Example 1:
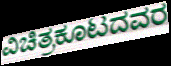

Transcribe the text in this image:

ವಿಚಿತ್ರಕೂಟದವರ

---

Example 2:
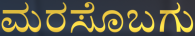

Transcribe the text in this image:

ಮರಸೊಬಗು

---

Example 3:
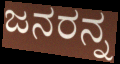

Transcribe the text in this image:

ಜನರನ್ನ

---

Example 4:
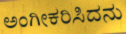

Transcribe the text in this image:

ಅಂಗೀಕರಿಸಿದನು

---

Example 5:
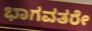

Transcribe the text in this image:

ಭಾಗವತರೇ